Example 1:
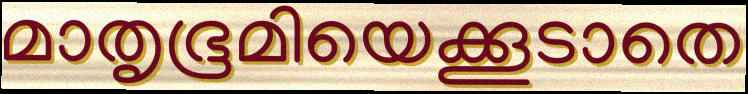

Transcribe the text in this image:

മാതൃഭൂമിയെക്കൂടാതെ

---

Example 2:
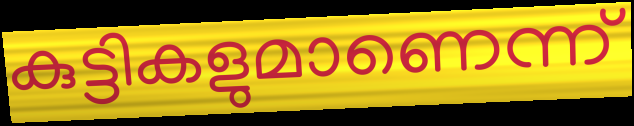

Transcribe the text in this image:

കുട്ടികളുമാണെന്ന്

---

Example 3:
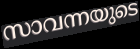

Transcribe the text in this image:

സാവന്നയുടെ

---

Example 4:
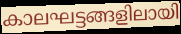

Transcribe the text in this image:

കാലഘട്ടങ്ങളിലായി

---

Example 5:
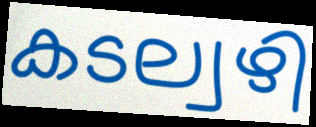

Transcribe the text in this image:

കടല്വഴി